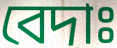
বেদাঃ